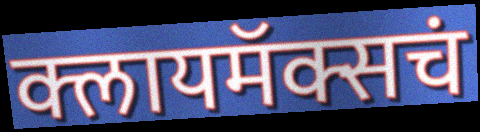
क्लायमॅक्सचं